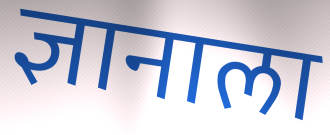
ज्ञानाला